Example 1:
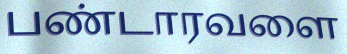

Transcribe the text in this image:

பண்டாரவளை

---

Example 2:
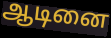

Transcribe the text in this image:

ஆடினை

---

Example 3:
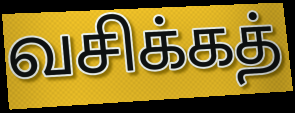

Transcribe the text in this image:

வசிக்கத்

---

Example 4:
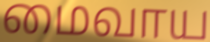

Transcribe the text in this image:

மைவாய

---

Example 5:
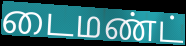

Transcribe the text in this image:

டைமண்ட்